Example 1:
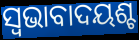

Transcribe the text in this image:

ସ୍ଵଭାବାଦୟଶ୍ଚ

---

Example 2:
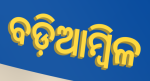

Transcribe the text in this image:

ବଡ଼ିଆମ୍ବିଳ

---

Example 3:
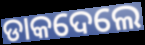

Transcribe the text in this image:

ଡାକଦେଲେ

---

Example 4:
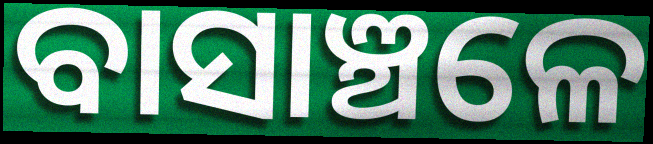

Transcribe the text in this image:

ବାସାଞ୍ଚଳେ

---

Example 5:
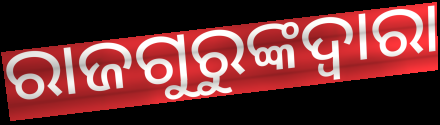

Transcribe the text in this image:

ରାଜଗୁରୁଙ୍କଦ୍ୱାରା